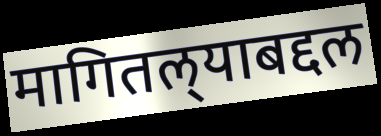
मागितल्याबद्दल